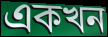
একখন